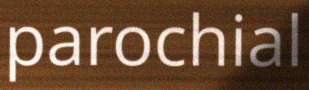
parochial